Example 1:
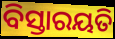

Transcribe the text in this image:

ବିସ୍ତାରୟତି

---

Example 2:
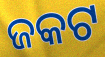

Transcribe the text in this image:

ଜକଟ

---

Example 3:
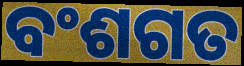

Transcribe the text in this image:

ବଂଶଗତ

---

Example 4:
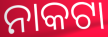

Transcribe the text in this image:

ନାକଟା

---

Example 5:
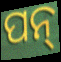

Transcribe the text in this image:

ପନ୍